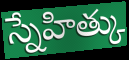
స్నేహిత్కు